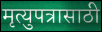
मृत्युपत्रासाठी